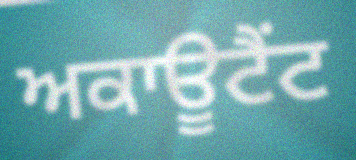
ਅਕਾਊਟੈਂਟ